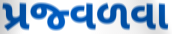
પ્રજ્વળવા